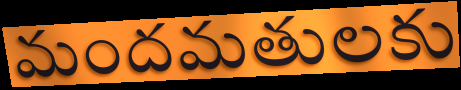
మందమతులకు